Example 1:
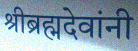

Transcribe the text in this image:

श्रीब्रह्मदेवांनी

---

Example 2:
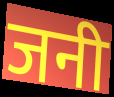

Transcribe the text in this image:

जनी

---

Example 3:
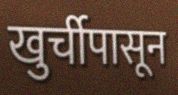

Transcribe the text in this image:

खुर्चीपासून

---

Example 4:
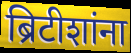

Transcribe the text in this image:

ब्रिटीशांना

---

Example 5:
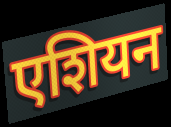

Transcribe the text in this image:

एशियन